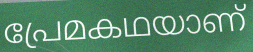
പ്രേമകഥയാണ്